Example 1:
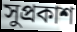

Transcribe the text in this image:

সুপ্রকাশ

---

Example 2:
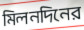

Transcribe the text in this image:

মিলনদিনের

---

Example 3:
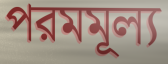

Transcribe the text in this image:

পরমমূল্য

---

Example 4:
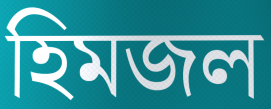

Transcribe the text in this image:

হিমজল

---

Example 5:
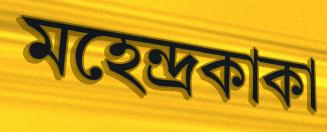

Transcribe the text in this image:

মহেন্দ্রকাকা